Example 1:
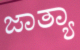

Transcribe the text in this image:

ಜಾತ್ಯಾ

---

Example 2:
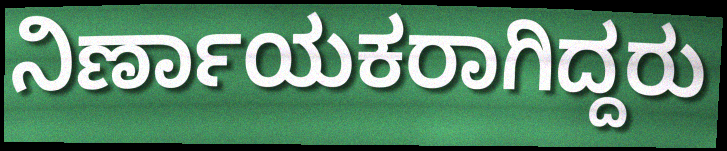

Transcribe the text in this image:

ನಿರ್ಣಾಯಕರಾಗಿದ್ದರು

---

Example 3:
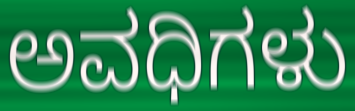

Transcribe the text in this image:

ಅವಧಿಗಳು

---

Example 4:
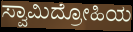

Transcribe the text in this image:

ಸ್ವಾಮಿದ್ರೋಹಿಯ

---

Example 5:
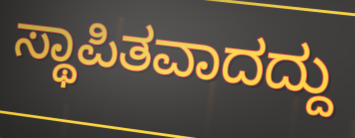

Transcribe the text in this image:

ಸ್ಥಾಪಿತವಾದದ್ದು